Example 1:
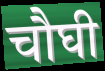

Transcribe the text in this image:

चौघी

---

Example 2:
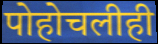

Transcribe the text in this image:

पोहोचलीही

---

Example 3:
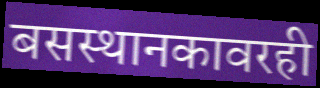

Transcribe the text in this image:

बसस्थानकावरही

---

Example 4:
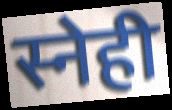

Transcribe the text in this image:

स्नेही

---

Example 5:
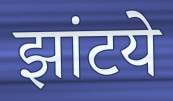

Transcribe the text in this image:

झांटये